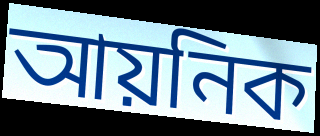
আয়নিক